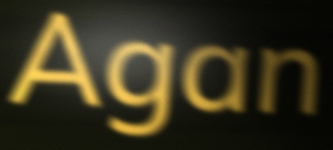
Agan